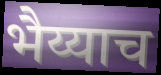
भैय्याच